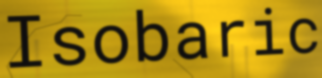
Isobaric